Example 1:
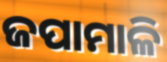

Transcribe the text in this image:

ଜପାମାଳି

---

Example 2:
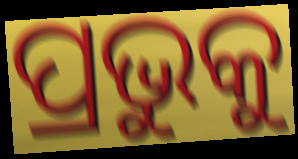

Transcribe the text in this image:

ପ୍ରଭୁକୁ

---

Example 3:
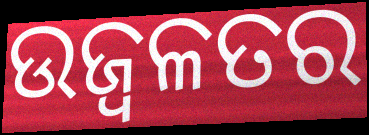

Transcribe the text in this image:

ଉଜ୍ବଳତର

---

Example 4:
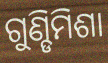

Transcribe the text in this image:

ଗୁଣ୍ଡିମିଶା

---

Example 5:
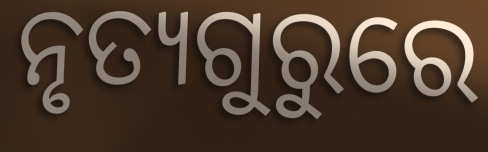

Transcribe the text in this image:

ନୃତ୍ୟଗୁରୁରେ